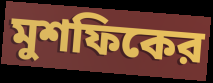
মুশফিকের